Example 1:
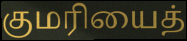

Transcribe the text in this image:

குமரியைத்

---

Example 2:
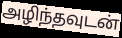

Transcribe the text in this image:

அழிந்தவுடன்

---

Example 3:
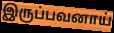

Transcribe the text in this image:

இருப்பவனாய்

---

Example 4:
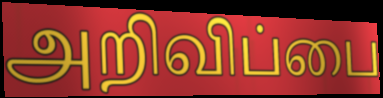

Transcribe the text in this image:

அறிவிப்பை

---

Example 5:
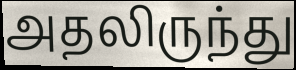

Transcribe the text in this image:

அதலிருந்து